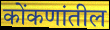
कोंकणांतील